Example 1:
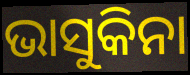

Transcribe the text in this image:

ଭାସୁକିନା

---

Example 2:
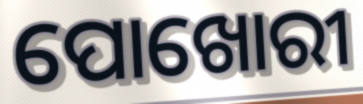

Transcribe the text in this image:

ପୋଖୋରୀ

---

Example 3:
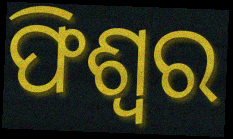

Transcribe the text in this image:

ଫିଶ୍ୱର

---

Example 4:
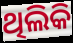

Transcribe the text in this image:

ଥିଲିକି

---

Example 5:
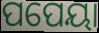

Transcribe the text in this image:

ପପେୟା